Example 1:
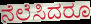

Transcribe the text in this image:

ನೆಲೆಸಿದರೂ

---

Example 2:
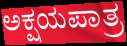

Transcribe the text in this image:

ಅಕ್ಷಯಪಾತ್ರ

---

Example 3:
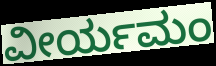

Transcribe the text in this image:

ವೀರ್ಯಮಂ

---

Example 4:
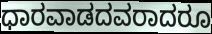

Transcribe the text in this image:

ಧಾರವಾಡದವರಾದರೂ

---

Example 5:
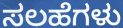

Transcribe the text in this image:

ಸಲಹೆಗಳು